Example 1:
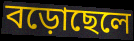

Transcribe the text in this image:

বড়োছেলে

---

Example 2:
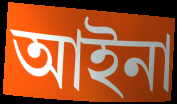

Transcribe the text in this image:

আইনা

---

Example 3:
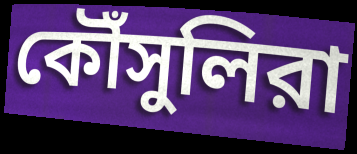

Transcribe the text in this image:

কৌঁসুলিরা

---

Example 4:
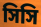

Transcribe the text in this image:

সিসি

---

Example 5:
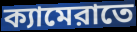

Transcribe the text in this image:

ক্যামেরাতে